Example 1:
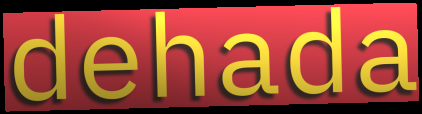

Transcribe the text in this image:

dehada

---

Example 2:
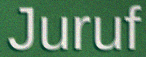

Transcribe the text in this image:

Juruf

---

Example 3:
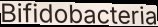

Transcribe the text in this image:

Bifidobacteria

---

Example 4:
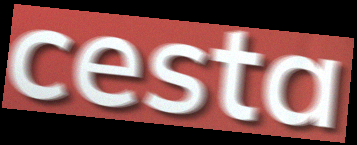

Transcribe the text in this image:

cesta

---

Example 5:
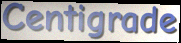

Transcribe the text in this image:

Centigrade